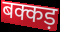
बक्कड़